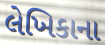
લેખિકાના